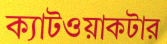
ক্যাটওয়াকটার